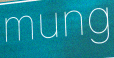
mung